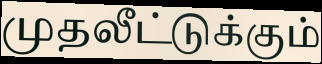
முதலீட்டுக்கும்